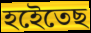
হইেতেছ